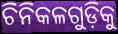
ଚିନିକଳଗୁଡ଼ିକୁ